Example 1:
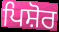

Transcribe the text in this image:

ਪਿਸ਼ੋਰ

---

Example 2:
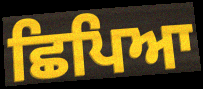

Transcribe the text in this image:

ਛਿਪਿਆ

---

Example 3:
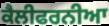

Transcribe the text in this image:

ਕੈਲੀਫਰਨੀਆ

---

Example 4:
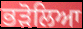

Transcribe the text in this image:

ਭੜੋਲਿਆ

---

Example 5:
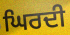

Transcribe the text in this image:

ਘਿਰਦੀ